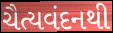
ચૈત્યવંદનથી